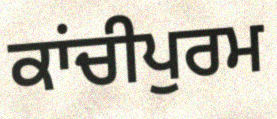
ਕਾਂਚੀਪੁਰਮ